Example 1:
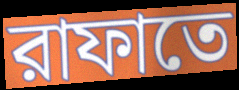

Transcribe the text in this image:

রাফাতে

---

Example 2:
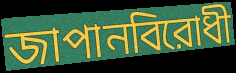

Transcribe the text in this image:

জাপানবিরোধী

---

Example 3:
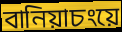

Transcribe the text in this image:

বানিয়াচংয়ে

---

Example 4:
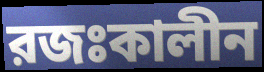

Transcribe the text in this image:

রজঃকালীন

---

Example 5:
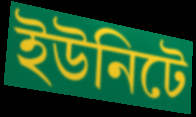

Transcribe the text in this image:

ইউনিটে